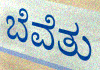
ಬೆವೆತು